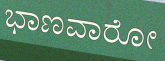
ಭಾಣವಾರೋ